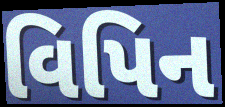
વિપિન